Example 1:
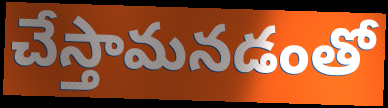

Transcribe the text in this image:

చేస్తామనడంతో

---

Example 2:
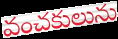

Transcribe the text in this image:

వంచకులును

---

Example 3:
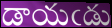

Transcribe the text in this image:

డాయఁడు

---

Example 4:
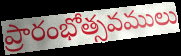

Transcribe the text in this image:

ప్రారంభోత్సవములు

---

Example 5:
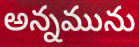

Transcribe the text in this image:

అన్నమును